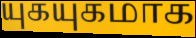
யுகயுகமாக